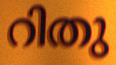
റിതു